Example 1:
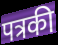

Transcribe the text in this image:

पत्रकी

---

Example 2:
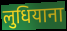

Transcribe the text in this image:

लुधियाना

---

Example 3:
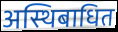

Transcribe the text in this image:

अस्थिबाधित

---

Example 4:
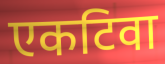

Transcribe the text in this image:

एकटिवा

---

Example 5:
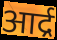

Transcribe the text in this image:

आर्द्र